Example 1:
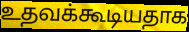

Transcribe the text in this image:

உதவக்கூடியதாக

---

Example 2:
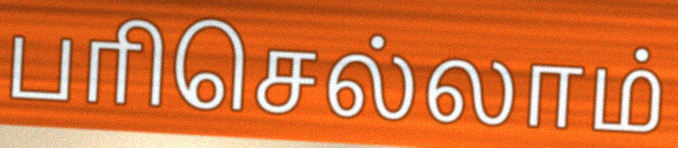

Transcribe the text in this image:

பரிசெல்லாம்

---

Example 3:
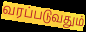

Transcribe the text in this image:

வரப்படுவதும்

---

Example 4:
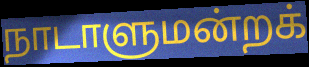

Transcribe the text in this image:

நாடாளுமன்றக்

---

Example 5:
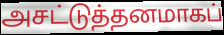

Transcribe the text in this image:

அசட்டுத்தனமாகப்